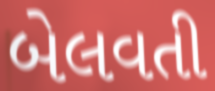
બેલવતી